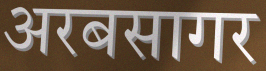
अरबसागर